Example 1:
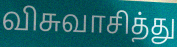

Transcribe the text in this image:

விசுவாசித்து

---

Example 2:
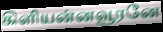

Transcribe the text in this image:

கிளியன்னவூரனே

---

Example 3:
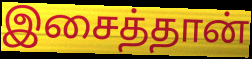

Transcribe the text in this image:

இசைத்தான்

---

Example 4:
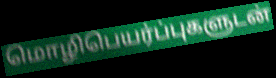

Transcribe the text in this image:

மொழிபெயர்ப்புகளுடன்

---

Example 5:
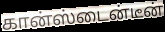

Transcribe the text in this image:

கான்ஸ்டைன்டீன்